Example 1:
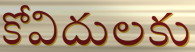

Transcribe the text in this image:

కోవిదులకు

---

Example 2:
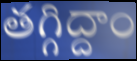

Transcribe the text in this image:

తగ్గిద్దాం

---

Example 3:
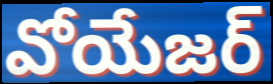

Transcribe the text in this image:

వోయేజర్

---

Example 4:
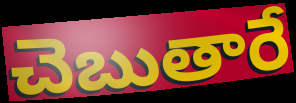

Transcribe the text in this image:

చెబుతారే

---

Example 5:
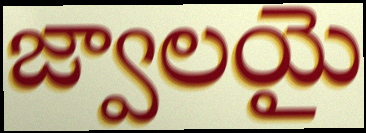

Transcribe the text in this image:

జ్వాలయై